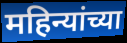
महिन्यांच्या